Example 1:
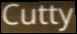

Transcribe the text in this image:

Cutty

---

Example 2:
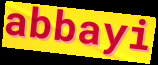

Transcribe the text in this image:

abbayi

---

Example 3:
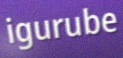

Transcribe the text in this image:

igurube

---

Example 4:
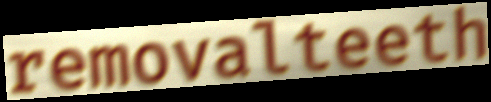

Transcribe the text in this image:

removalteeth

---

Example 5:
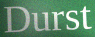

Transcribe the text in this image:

Durst